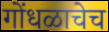
गोंधळाचेच